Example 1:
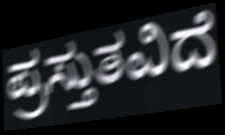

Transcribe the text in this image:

ಪ್ರಸ್ತುತವಿದೆ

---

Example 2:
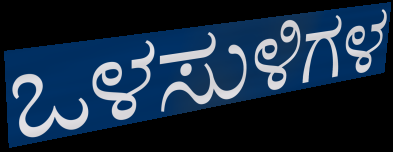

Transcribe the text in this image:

ಒಳಸುಳಿಗಳ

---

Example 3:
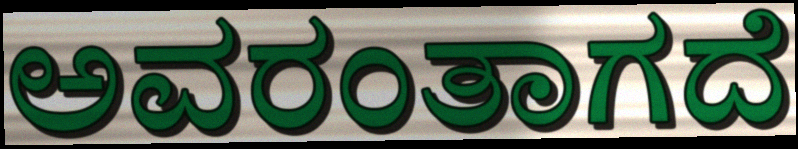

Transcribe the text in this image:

ಅವರಂತಾಗದೆ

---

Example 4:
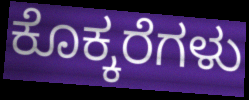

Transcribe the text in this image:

ಕೊಕ್ಕರೆಗಳು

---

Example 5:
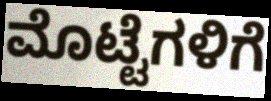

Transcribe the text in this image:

ಮೊಟ್ಟೆಗಳಿಗೆ